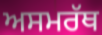
ਅਸਮਰੱਥ